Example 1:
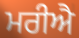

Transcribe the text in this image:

ਮਰੀਐ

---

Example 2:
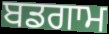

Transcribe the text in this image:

ਬਡਗਾਮ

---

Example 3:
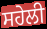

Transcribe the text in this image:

ਸਹੇਲੀ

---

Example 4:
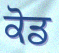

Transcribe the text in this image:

ਕੋਡ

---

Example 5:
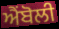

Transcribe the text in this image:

ਐਂਬੋਲੀ